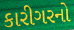
કારીગરનો